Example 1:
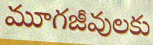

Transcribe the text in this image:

మూగజీవులకు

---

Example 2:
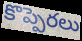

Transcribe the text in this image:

కొప్పెరలు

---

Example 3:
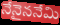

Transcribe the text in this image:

నేనైననేమి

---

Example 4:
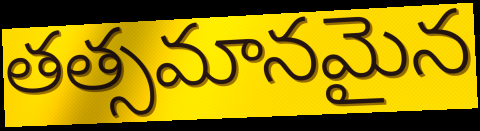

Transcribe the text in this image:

తత్సమానమైన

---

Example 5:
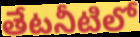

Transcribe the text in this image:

తేటనీటిలో